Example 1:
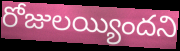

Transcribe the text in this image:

రోజులయ్యిందని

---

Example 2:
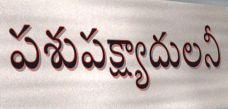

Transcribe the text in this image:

పశుపక్ష్యాదులనీ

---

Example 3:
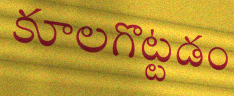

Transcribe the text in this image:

కూలగొట్టడం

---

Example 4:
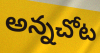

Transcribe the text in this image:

అన్నచోట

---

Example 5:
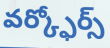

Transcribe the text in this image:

వర్క్ఫోర్స్